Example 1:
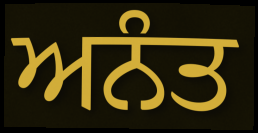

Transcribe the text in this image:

ਅਨੰਤ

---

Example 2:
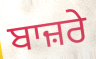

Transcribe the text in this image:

ਬਾਜ਼ਰੇ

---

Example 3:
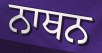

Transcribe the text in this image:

ਨਾਥਨ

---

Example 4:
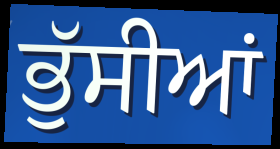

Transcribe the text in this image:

ਭੁੱਸੀਆਂ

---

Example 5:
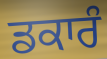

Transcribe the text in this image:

ਡਕਾਰੰ